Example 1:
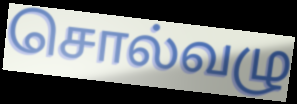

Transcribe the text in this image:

சொல்வழு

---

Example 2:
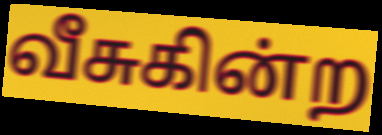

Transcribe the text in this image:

வீசுகின்ற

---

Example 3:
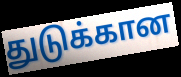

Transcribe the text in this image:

துடுக்கான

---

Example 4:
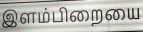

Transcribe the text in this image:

இளம்பிறையை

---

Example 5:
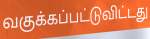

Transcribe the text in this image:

வகுக்கப்பட்டுவிட்டது